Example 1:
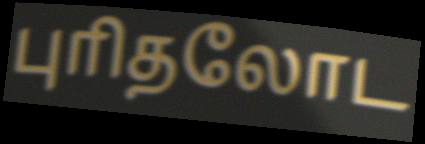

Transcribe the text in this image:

புரிதலோட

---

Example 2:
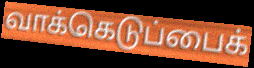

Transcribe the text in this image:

வாக்கெடுப்பைக்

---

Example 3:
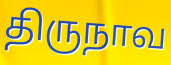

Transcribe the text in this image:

திருநாவ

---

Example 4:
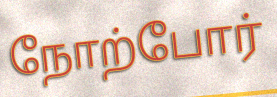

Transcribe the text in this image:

நோற்போர்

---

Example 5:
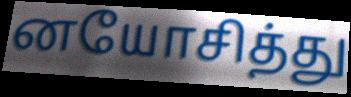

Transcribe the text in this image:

னயோசித்து